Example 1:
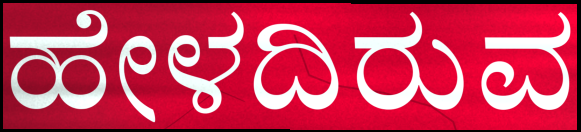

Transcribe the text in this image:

ಹೇಳದಿರುವ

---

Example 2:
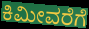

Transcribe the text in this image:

ಕಿಮೀವರೆಗೆ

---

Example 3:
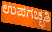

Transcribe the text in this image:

ಉಪಗಚ್ಛತಿ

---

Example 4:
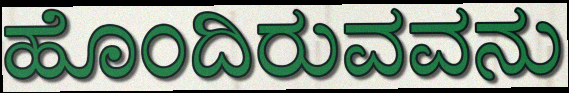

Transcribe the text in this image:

ಹೊಂದಿರುವವನು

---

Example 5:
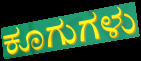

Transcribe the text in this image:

ಕೂಗುಗಳು